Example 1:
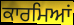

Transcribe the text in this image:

ਕਾਰਮਿਆਂ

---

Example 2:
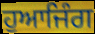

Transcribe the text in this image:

ਹੁਆਜਿੰਗ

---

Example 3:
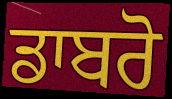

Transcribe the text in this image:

ਡਾਬਰੋ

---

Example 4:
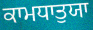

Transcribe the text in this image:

ਕਾਮਧਾਤੁਯਾ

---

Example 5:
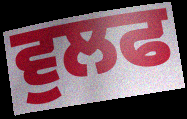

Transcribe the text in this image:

ਵੁਲਫ